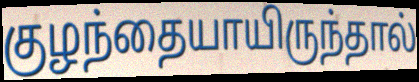
குழந்தையாயிருந்தால்